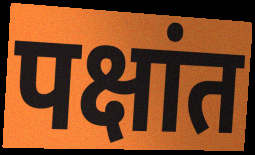
पक्षांत